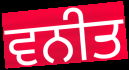
ਵਨੀਤ